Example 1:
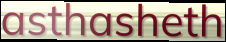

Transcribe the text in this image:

asthasheth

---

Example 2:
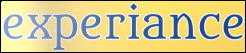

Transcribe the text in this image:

experiance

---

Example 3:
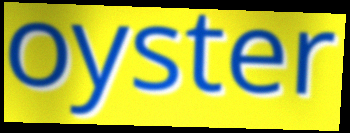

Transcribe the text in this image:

oyster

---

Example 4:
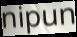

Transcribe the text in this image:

nipun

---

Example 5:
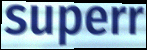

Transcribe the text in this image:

superr